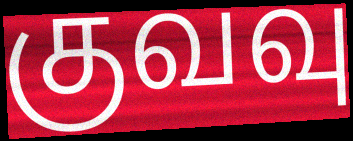
குவவு